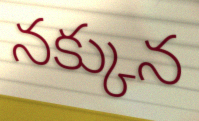
నక్కున